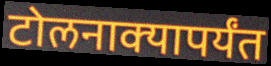
टोलनाक्यापर्यंत